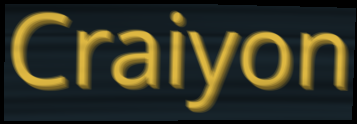
Craiyon